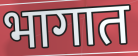
भागात